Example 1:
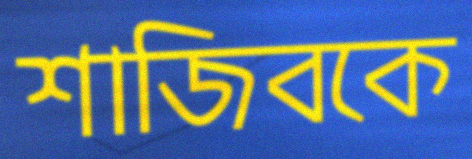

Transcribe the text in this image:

শাজিবকে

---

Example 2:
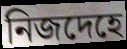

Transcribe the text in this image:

নিজদেহে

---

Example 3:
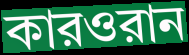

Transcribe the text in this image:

কারওরান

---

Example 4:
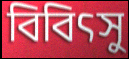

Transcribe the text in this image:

বিবিৎসু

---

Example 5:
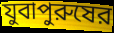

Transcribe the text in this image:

যুবাপুরুষের